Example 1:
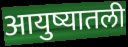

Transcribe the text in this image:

आयुष्यातली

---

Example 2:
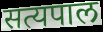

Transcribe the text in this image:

सत्यपाल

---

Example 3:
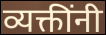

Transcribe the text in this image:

व्यक्तींनी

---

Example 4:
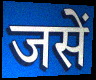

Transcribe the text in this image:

जसें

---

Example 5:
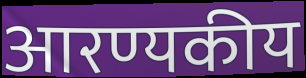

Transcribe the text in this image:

आरण्यकीय